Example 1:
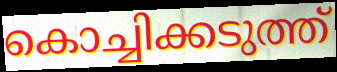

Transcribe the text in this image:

കൊച്ചിക്കടുത്ത്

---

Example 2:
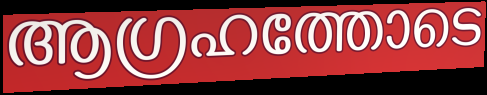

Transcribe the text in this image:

ആഗ്രഹത്തോടെ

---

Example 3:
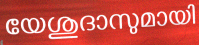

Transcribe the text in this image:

യേശുദാസുമായി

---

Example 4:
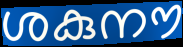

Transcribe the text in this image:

ശകുനൗ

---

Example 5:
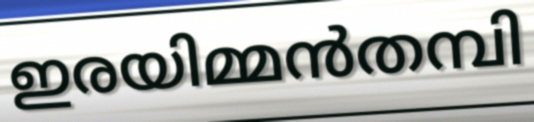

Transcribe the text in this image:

ഇരയിമ്മൻതമ്പി